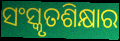
ସଂସ୍କୃତଶିକ୍ଷାର